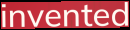
invented